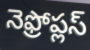
నెఫ్రోప్లస్